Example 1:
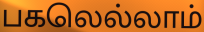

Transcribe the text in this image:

பகலெல்லாம்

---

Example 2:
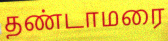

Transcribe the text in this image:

தண்டாமரை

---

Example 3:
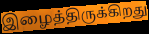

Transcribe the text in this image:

இழைத்திருக்கிறது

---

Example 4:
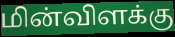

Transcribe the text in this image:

மின்விளக்கு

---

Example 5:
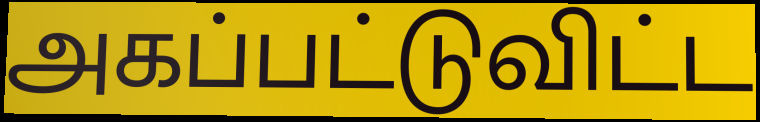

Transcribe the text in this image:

அகப்பட்டுவிட்ட